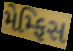
મેમ્ફિસ